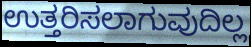
ಉತ್ತರಿಸಲಾಗುವುದಿಲ್ಲ